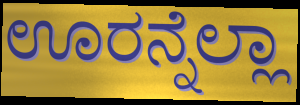
ಊರನ್ನೆಲ್ಲಾ